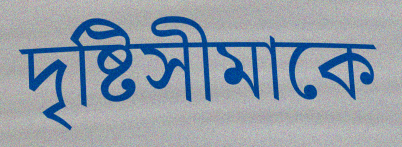
দৃষ্টিসীমাকে